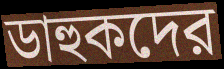
ডাহুকদের